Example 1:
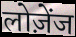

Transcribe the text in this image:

लोज़ेंज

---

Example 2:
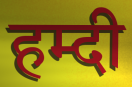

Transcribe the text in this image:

हम्दी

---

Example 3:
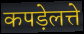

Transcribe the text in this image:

कपड़ेलत्ते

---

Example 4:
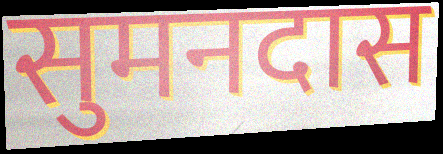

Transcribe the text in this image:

सुमनदास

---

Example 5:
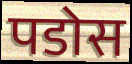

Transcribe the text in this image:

पडोस